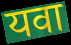
यवा